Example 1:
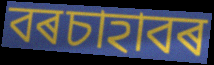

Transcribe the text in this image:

বৰচাহাবৰ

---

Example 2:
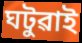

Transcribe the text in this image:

ঘটুৱাই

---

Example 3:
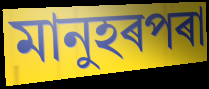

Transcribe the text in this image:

মানুহৰপৰা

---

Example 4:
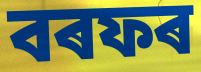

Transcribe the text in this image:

বৰফৰ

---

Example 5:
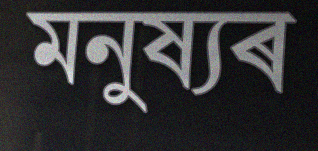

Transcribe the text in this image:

মনুষ্যৰ